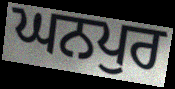
ਘਨਪੁਰ